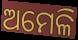
ଅମେଳି